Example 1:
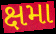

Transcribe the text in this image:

ક્ષમા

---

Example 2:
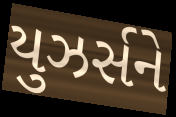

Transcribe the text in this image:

યુઝર્સને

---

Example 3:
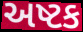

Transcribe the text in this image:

અષ્ટક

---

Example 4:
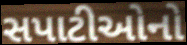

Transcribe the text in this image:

સપાટીઓનો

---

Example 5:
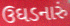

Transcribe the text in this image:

ઉઘડનારું